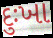
દુઃખા